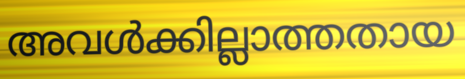
അവൾക്കില്ലാത്തതായ